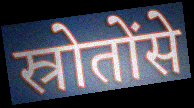
स्रोतोंसे